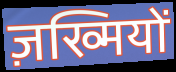
ज़ख्मियों